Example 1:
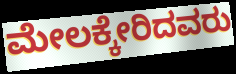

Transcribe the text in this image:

ಮೇಲಕ್ಕೇರಿದವರು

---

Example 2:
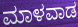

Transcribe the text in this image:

ಮಾಳವಾಡ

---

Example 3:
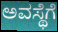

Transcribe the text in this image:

ಅವಸ್ಥೆಗೆ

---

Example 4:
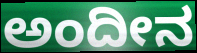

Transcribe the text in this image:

ಅಂದೀನ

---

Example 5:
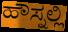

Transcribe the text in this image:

ಹೌಸ್ನಲ್ಲಿ